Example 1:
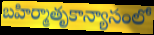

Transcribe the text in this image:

బహిర్మాతృకాన్యాసంలో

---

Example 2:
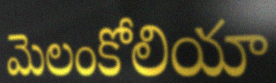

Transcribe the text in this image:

మెలంకోలియా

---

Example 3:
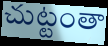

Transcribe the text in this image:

చుట్టంతా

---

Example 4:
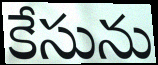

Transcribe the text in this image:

కేసును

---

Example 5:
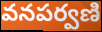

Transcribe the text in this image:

వనపర్వణి